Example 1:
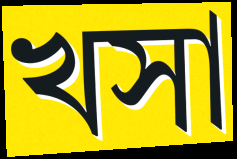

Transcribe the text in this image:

খসা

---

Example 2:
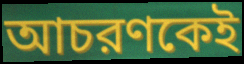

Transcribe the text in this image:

আচরণকেই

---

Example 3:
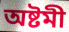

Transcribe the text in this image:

অষ্টমী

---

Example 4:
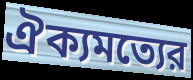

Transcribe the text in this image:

ঐক্যমত্যের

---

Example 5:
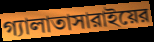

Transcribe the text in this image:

গ্যালাতাসারাইয়ের